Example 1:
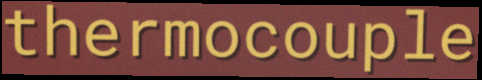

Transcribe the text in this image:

thermocouple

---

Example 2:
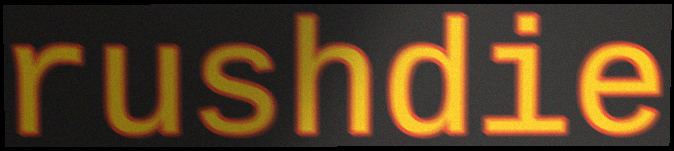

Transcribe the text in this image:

rushdie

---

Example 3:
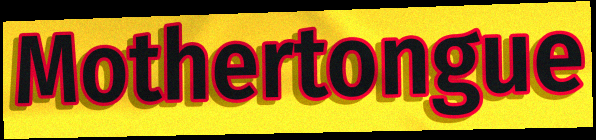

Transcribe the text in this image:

Mothertongue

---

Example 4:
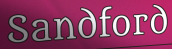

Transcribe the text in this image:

Sandford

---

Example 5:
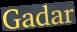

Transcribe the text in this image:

Gadar